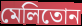
মেলিতোন